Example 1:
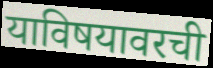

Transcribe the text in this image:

याविषयावरची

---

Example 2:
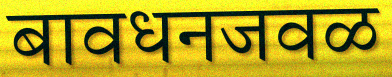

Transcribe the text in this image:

बावधनजवळ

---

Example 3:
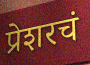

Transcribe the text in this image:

प्रेशरचं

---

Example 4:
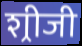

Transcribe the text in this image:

श्रीजी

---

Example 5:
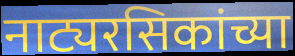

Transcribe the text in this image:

नाट्यरसिकांच्या